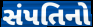
સંપતિનો